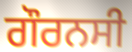
ਗੌਰਨਸੀ